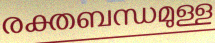
രക്തബന്ധമുള്ള